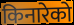
किनारेको